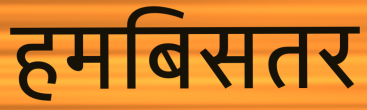
हमबिसतर